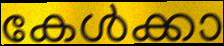
കേൾക്കാ